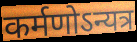
कर्मणोऽन्यत्र